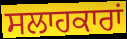
ਸਲਾਹਕਾਰਾਂ